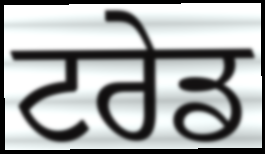
ਟਰੇਡ